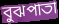
বুঝপাতা